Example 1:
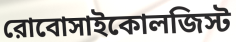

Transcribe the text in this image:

রোবোসাইকোলজিস্ট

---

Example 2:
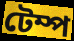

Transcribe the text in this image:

টেম্প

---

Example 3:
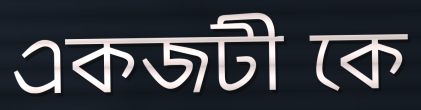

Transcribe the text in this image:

একজটীকে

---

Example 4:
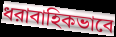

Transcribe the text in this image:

ধরাবাহিকভাবে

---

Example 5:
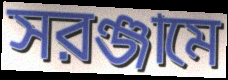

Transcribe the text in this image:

সরঞ্জামে